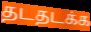
தடதடக்க